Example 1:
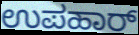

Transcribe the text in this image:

ಉಪಹಾರ್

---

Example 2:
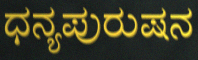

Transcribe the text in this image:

ಧನ್ಯಪುರುಷನ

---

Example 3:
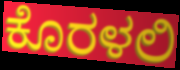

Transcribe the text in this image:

ಕೊರಳಲಿ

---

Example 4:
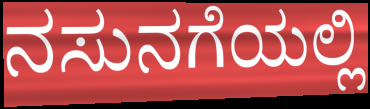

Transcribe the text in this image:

ನಸುನಗೆಯಲ್ಲಿ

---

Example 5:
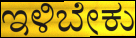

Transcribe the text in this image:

ಇಳಿಬೇಕು